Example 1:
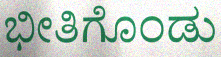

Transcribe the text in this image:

ಭೀತಿಗೊಂಡು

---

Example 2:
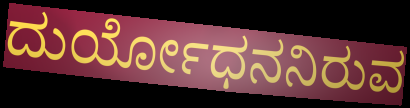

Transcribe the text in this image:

ದುರ್ಯೋಧನನಿರುವ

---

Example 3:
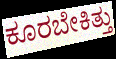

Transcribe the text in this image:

ಕೂರಬೇಕಿತ್ತು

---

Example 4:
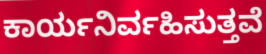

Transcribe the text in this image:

ಕಾರ್ಯನಿರ್ವಹಿಸುತ್ತವೆ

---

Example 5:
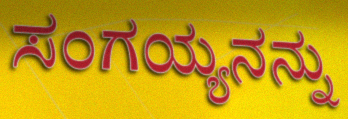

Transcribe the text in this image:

ಸಂಗಯ್ಯನನ್ನು